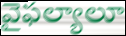
వైఫల్యాలూ